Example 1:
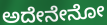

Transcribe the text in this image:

ಅದೇನೇನೋ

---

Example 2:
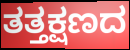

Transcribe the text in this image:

ತತ್ತಕ್ಷಣದ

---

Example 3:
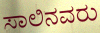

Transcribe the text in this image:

ಸಾಲಿನವರು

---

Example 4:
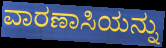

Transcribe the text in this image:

ವಾರಣಾಸಿಯನ್ನು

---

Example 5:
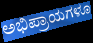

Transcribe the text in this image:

ಅಭಿಪ್ರಾಯಗಳೂ